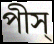
পীস্